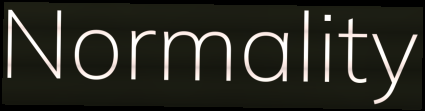
Normality